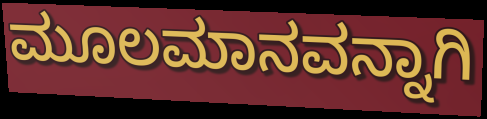
ಮೂಲಮಾನವನ್ನಾಗಿ